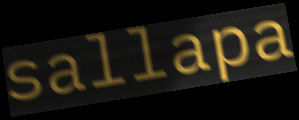
sallapa